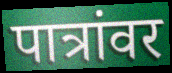
पात्रांवर